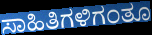
ಸಾಹಿತಿಗಳಿಗಂತೂ